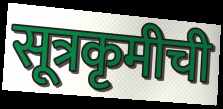
सूत्रकृमीची